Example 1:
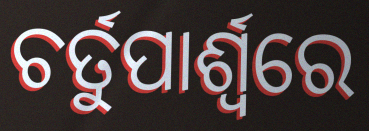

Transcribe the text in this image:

ଚର୍ତୁପାର୍ଶ୍ବରେ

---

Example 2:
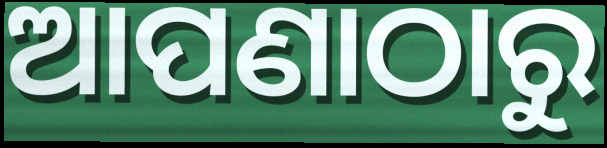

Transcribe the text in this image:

ଆପଣାଠାରୁ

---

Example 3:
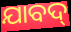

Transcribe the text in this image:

ଯାବଦ୍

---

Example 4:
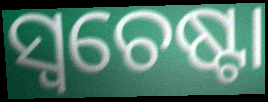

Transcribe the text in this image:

ସ୍ଵଚେଷ୍ଟା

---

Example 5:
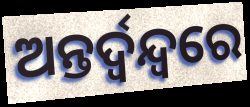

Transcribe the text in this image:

ଅନ୍ତର୍ଦ୍ୱନ୍ଦ୍ୱରେ